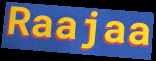
Raajaa